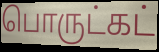
பொருட்கட்